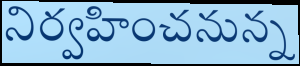
నిర్వహించనున్న